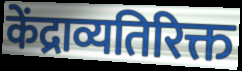
केंद्राव्यतिरिक्त